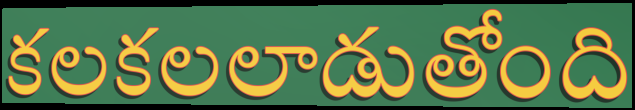
కలకలలాడుతోంది